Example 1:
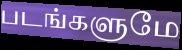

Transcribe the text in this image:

படங்களுமே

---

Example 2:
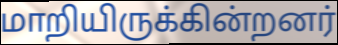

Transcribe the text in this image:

மாறியிருக்கின்றனர்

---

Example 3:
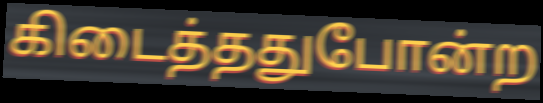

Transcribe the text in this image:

கிடைத்ததுபோன்ற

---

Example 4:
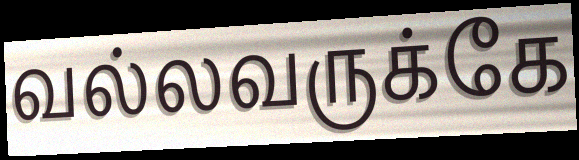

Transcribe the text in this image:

வல்லவருக்கே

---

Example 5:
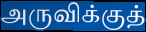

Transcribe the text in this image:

அருவிக்குத்